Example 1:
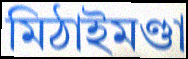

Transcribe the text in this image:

মিঠাইমণ্ডা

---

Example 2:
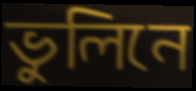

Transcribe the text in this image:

ভুলিনে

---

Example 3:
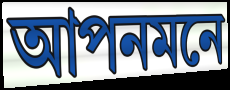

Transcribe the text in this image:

আপনমনে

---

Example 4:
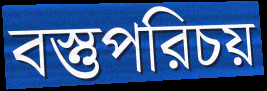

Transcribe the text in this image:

বস্তুপরিচয়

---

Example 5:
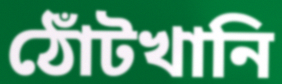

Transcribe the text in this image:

ঠোঁটখানি